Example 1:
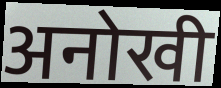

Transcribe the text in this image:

अनोखी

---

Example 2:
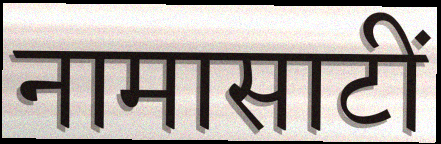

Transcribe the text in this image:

नामासाटीं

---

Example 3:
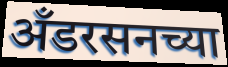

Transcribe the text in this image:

अँडरसनच्या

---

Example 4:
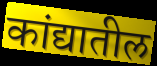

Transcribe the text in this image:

कांद्यातील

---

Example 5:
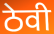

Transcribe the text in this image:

ठेवी